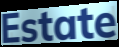
Estate